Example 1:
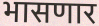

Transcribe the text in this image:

भासणार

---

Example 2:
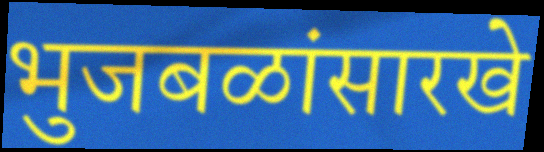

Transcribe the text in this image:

भुजबळांसारखे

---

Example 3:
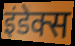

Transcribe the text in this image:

इंडेक्स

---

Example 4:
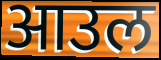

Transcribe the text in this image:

आउल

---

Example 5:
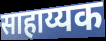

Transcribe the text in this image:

साहाय्यक